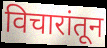
विचारांतून